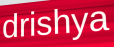
drishya